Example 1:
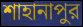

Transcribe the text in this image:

শাহানাপুর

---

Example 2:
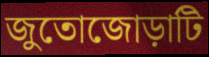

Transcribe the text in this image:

জুতোজোড়াটি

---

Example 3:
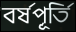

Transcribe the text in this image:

বর্ষপূর্তি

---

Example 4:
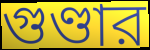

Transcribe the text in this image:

গুণ্ডার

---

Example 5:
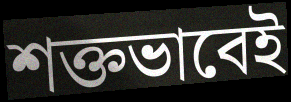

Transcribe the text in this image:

শক্তভাবেই